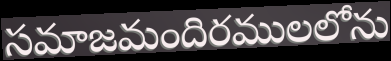
సమాజమందిరములలోను